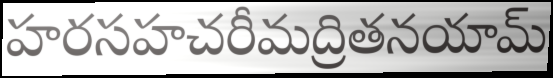
హరసహచరీమద్రితనయామ్